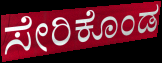
ಸೇರಿಕೊಂಡ